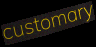
customary